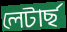
লেটাৰ্ছ